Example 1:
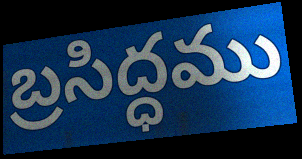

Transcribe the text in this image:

బ్రసిద్ధము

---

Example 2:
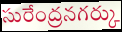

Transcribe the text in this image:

సురేంద్రనగర్కు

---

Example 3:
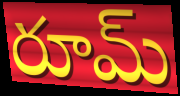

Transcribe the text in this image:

రూమ్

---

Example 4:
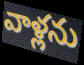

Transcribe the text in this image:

వాళ్లను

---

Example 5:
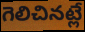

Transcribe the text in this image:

గెలిచినట్లే